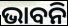
ଭାବନି